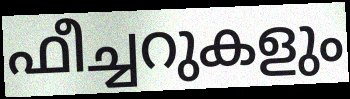
ഫീച്ചറുകളും